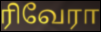
ரிவேரா